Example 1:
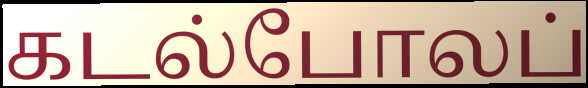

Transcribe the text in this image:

கடல்போலப்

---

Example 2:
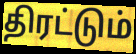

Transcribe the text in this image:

திரட்டும்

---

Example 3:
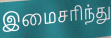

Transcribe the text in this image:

இமைசரிந்து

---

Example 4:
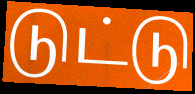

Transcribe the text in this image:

டுட்டு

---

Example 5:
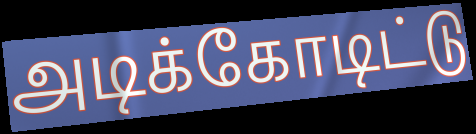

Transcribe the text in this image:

அடிக்கோடிட்டு